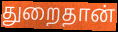
துறைதான்